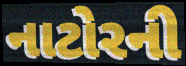
નાટોરની